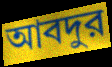
আবদুর